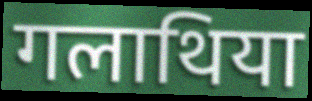
गलाथिया